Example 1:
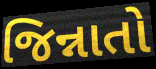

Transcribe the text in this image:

જિન્નાતો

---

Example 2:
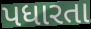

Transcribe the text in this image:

પધારતા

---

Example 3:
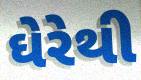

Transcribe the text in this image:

ઘેરેથી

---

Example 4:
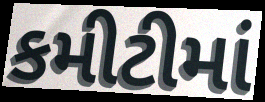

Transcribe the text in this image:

કમીટીમાં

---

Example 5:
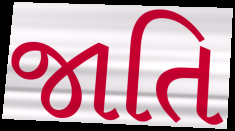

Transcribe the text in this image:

જાતિ